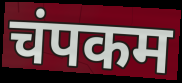
चंपकम